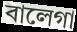
বালেগা